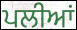
ਪਲੀਆਂ